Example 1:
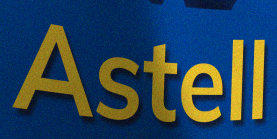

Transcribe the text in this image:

Astell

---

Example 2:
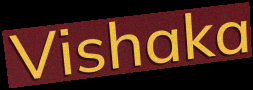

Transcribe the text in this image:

Vishaka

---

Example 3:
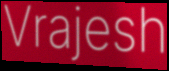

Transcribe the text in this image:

Vrajesh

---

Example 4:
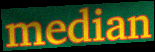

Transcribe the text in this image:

median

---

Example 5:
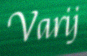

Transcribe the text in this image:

Varij